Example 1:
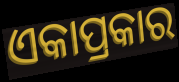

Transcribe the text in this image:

ଏକାପ୍ରକାର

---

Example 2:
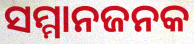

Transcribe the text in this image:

ସମ୍ମାନଜନକ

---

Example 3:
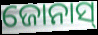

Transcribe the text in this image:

ଜୋନାସ୍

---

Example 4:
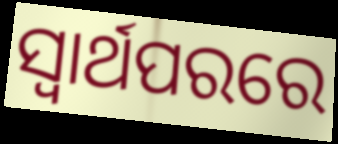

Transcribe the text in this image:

ସ୍ୱାର୍ଥପରରେ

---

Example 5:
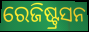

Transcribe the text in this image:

ରେଜିଷ୍ଟ୍ରସନ